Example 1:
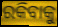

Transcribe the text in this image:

ରକିବାକୁ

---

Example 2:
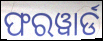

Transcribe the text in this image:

ଫରୱାର୍ଡ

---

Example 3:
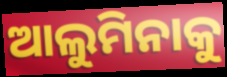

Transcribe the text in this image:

ଆଲୁମିନାକୁ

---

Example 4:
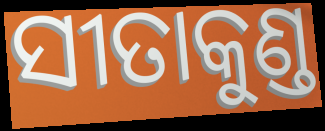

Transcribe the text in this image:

ସୀତାକୁଣ୍ଡ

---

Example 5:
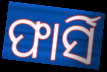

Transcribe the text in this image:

ଫାର୍ସି